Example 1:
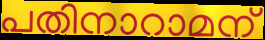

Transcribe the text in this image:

പതിനാറാമന്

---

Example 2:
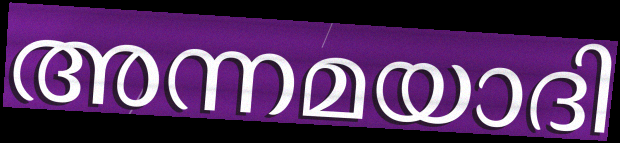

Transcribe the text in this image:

അന്നമയാദി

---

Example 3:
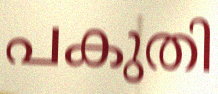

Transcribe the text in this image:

പകുതി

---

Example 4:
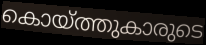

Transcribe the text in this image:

കൊയ്ത്തുകാരുടെ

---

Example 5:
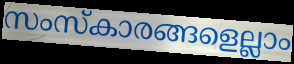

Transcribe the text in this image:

സംസ്കാരങ്ങളെല്ലാം